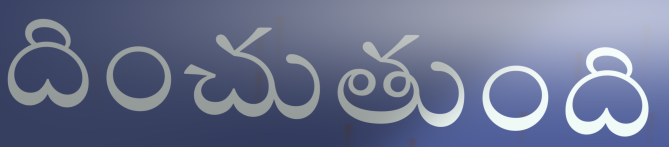
దించుతుంది